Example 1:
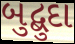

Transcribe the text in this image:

બુદ્બુદા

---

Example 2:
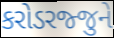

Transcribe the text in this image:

કરોડરજ્જુને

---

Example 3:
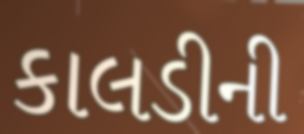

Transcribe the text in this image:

કાલડીની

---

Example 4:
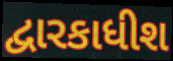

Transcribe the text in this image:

દ્વારકાધીશ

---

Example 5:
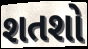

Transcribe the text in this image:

શતશો